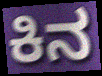
ಕಿನ